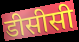
डीसीसी